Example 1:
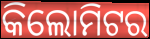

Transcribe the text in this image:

କିଲୋମିଟର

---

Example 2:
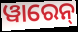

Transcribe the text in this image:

ୱାରେନ୍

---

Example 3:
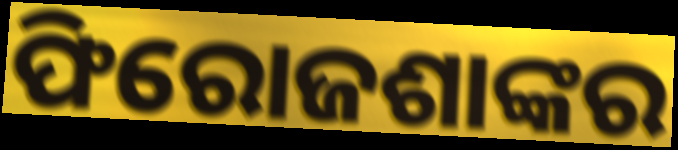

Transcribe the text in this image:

ଫିରୋଜଶାଙ୍କର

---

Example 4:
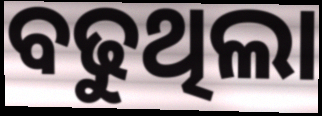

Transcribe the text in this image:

ବଢୁଥିଲା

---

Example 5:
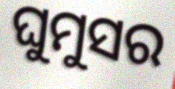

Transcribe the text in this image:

ଘୁମୁସର